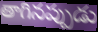
తాగినప్పుడు